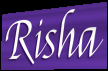
Risha